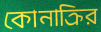
কোনাক্রির